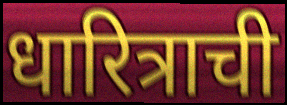
धारित्राची